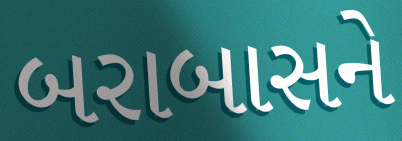
બરાબાસને